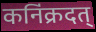
कनि॑क्रदत्